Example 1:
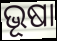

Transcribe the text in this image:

ଭୂଷା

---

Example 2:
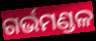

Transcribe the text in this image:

ଗର୍ଭମଣ୍ଡଳ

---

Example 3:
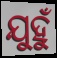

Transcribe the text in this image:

ଯୁହୁଁ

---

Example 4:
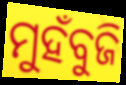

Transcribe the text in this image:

ମୁହଁବୁଜି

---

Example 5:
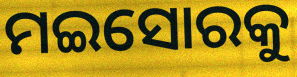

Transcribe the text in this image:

ମଇସୋରକୁ